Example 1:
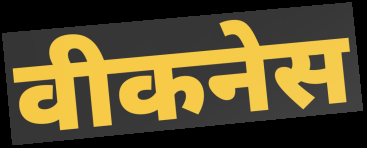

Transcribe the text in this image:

वीकनेस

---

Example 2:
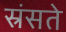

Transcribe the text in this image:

स्रंसते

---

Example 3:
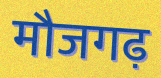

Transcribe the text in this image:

मौजगढ़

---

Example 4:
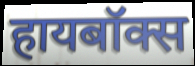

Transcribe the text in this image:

हायबॉक्स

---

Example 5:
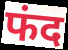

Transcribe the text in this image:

फंद